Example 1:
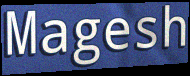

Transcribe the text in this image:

Magesh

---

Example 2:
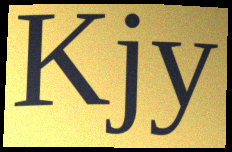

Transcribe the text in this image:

Kjy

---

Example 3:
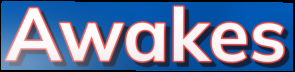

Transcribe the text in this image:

Awakes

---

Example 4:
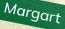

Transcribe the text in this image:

Margart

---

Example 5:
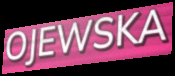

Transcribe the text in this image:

OJEWSKA